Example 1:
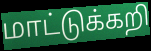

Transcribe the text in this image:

மாட்டுக்கறி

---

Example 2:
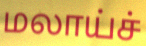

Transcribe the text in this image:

மலாய்ச்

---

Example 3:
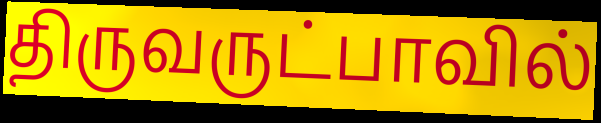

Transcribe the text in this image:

திருவருட்பாவில்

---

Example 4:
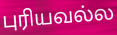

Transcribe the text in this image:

புரியவல்ல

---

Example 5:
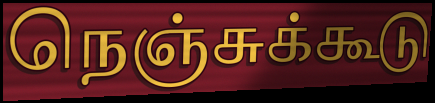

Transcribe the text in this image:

நெஞ்சுக்கூடு